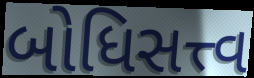
બોધિસત્ત્વ